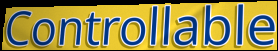
Controllable